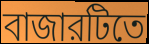
বাজারটিতে